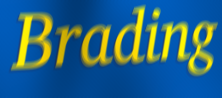
Brading